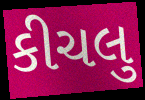
કીચલુ